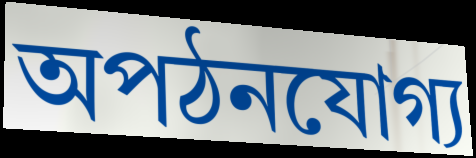
অপঠনযোগ্য